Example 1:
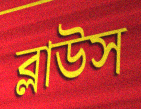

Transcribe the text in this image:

ব্লাউস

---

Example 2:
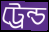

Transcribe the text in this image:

ট্রেন্ড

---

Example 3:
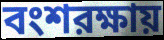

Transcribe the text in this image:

বংশরক্ষায়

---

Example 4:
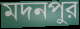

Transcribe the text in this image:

মদনপুর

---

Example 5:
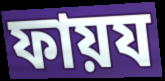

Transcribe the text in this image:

ফায়য